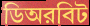
ডিঅরবিট